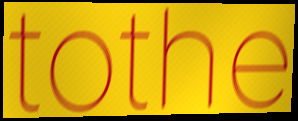
tothe